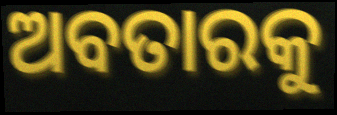
ଅବତାରକୁ